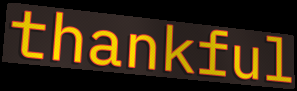
thankful